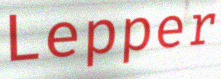
Lepper